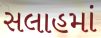
સલાહમાં